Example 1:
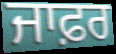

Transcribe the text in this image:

ਜਾਫ਼ਰ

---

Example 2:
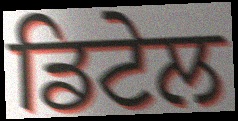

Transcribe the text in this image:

ਡਿਟੇਲ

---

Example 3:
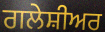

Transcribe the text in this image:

ਗਲੇਸ਼ੀਅਰ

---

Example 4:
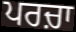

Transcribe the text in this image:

ਪਰਚ਼ਾ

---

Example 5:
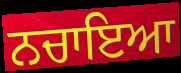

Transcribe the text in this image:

ਨਚਾਇਆ